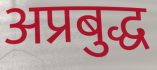
अप्रबुद्ध